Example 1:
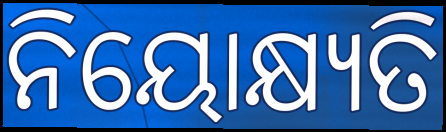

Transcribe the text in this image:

ନିୟୋକ୍ଷ୍ୟତି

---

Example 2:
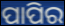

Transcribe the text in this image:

ପାପିର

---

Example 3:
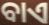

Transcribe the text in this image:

ବାଏ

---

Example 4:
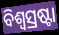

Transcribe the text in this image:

ବିଶ୍ୱସ୍ରଷ୍ଟା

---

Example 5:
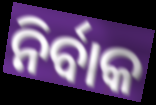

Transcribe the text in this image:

ନିର୍ବାକ